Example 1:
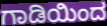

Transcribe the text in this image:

ಗಾಡಿಯಿಂದ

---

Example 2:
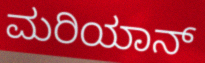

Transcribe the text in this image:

ಮರಿಯಾನ್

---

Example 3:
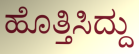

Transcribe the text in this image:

ಹೊತ್ತಿಸಿದ್ದು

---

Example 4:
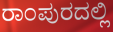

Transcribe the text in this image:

ರಾಂಪುರದಲ್ಲಿ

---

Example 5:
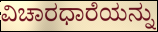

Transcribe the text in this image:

ವಿಚಾರಧಾರೆಯನ್ನು